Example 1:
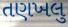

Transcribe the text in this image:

તણખલુ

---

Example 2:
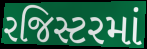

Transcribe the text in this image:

રજિસ્ટરમાં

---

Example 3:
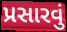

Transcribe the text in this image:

પ્રસારવું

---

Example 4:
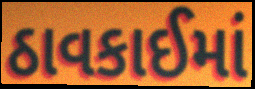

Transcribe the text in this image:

ઠાવકાઈમાં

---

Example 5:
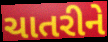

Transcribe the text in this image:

ચાતરીને